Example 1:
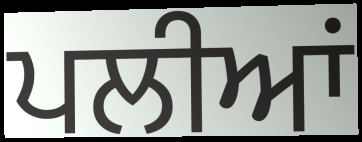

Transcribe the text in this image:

ਪਲੀਆਂ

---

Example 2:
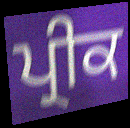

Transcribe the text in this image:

ਪ੍ਰੀਕ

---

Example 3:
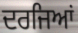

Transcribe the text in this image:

ਦਰਜਿਆਂ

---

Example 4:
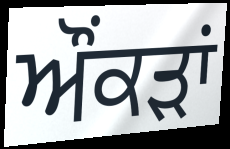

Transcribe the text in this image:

ਔਂਕੜਾਂ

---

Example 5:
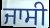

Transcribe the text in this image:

ਜਾਸੀ